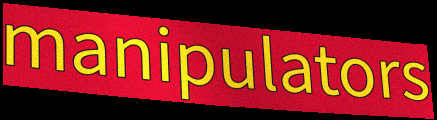
manipulators